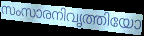
സംസാരനിവൃത്തിയോ